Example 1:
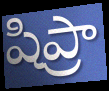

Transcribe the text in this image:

షిప్రా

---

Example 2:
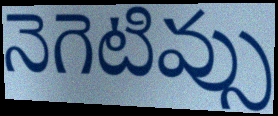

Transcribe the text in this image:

నెగెటివ్సు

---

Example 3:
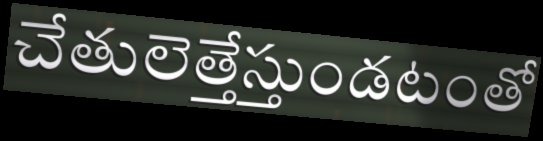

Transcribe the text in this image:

చేతులెత్తేస్తుండటంతో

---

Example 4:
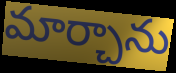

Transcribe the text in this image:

మార్చాను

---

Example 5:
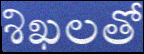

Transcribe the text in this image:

శిఖలతో